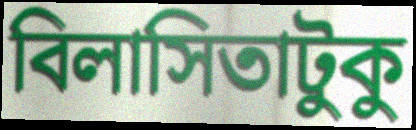
বিলাসিতাটুকু